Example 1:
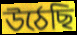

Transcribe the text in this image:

উঠেছি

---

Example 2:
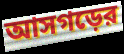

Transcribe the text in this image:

আসগড়ের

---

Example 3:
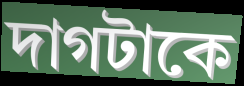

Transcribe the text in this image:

দাগটাকে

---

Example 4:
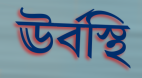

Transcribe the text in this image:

ঊর্বস্থি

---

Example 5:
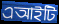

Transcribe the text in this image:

এআইটি